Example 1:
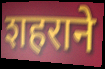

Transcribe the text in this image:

शहराने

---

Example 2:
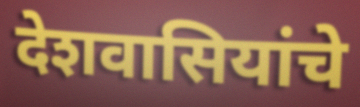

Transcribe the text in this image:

देशवासियांचे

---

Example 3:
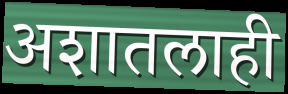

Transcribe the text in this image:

अशातलाही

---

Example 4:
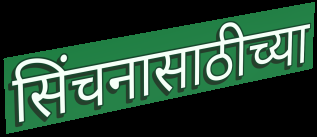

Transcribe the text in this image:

सिंचनासाठीच्या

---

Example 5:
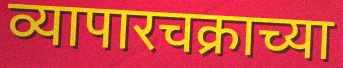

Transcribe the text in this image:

व्यापारचक्राच्या